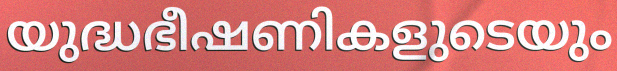
യുദ്ധഭീഷണികളുടെയും